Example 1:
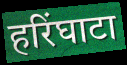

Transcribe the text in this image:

हरिंघाटा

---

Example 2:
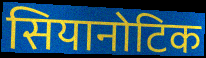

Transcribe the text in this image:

सियानोटिक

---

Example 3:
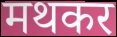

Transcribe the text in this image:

मथकर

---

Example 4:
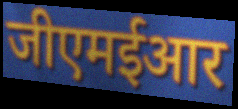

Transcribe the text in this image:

जीएमईआर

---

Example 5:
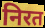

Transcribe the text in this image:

निरत